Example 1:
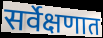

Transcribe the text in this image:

सर्वेक्षणात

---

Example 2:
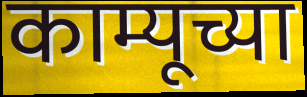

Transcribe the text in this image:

काम्यूच्या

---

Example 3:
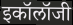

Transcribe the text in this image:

इकॉलॉजी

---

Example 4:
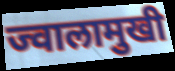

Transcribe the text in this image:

ज्वालामुखी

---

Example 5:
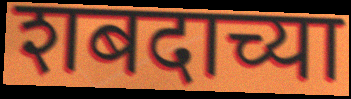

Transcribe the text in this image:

शबदाच्या